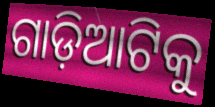
ଗାଡ଼ିଆଟିକୁ